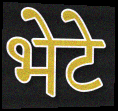
भेटे